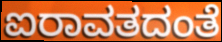
ಐರಾವತದಂತೆ